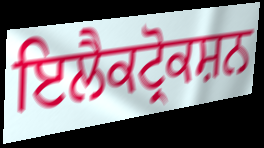
ਇਲੈਕਟ੍ਰੋਕਸ਼ਨ